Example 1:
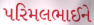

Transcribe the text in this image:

પરિમલભાઈને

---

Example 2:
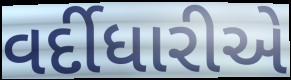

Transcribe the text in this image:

વર્દીધારીએ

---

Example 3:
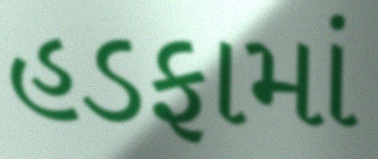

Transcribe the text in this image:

હડફામાં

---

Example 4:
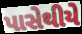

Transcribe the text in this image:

પાસેથીયે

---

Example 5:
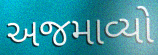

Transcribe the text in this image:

અજમાવ્યો